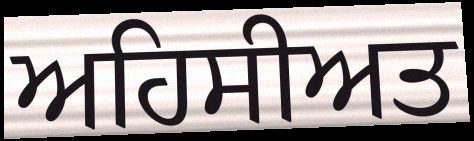
ਅਹਿਸੀਅਤ